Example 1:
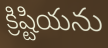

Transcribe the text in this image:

క్రిష్టియను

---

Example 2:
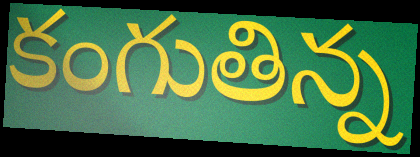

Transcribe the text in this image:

కంగుతిన్న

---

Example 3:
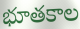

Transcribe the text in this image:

భూతకాల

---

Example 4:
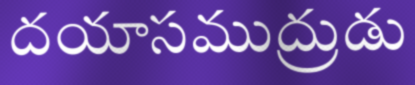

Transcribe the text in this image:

దయాసముద్రుడు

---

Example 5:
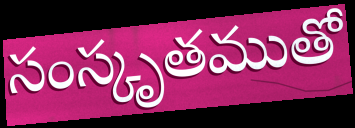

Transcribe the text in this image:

సంస్కృతముతో